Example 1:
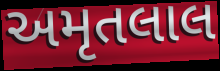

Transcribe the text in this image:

અમૃતલાલ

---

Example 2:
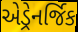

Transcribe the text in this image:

એડ્રેનર્જિક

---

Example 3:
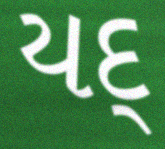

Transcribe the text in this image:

યદ્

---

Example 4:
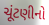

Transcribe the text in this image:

ચૂંટણીનો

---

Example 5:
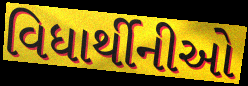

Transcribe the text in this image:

વિધાર્થીનીઓ